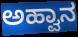
ಅಹ್ವಾನ